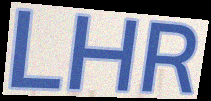
LHR